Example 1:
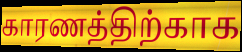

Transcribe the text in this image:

காரணத்திற்காக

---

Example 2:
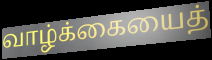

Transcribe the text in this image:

வாழ்க்கையைத்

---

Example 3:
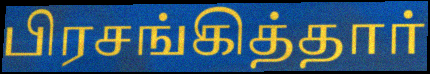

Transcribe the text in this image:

பிரசங்கித்தார்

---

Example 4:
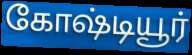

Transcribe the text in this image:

கோஷ்டியூர்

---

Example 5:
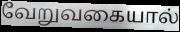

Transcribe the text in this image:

வேறுவகையால்